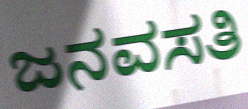
ಜನವಸತಿ